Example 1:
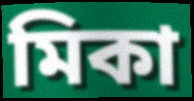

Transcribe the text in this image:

মিকা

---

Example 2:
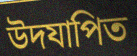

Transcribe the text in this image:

উদযাপিত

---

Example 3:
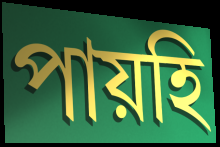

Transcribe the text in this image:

পায়হি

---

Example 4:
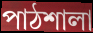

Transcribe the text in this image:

পাঠশালা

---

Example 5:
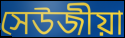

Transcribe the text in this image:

সেউজীয়া